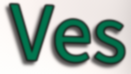
Ves